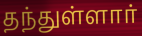
தந்துள்ளார்